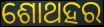
ଶୋଥହର